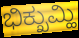
ಭಿಕ್ಖುಮ್ಹಿ